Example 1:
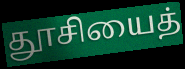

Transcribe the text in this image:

தூசியைத்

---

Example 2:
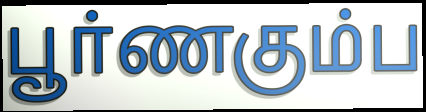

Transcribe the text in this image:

பூர்ணகும்ப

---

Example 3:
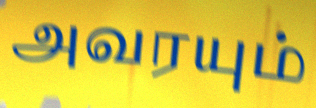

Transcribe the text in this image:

அவரயும்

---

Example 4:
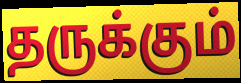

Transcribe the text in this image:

தருக்கும்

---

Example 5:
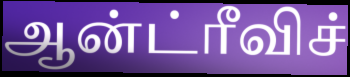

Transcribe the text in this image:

ஆன்ட்ரீவிச்